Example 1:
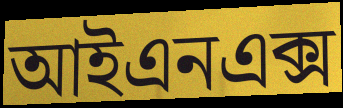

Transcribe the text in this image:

আইএনএক্স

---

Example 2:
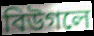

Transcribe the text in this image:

বিউগলে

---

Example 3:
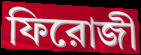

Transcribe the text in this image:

ফিরোজী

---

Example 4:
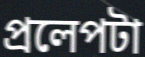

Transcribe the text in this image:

প্রলেপটা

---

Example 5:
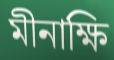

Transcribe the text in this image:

মীনাক্ষি